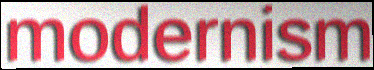
modernism